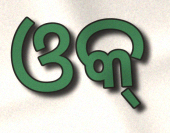
ଓକ୍